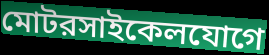
মোটরসাইকেলযোগে